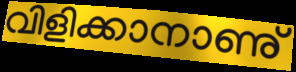
വിളിക്കാനാണു്